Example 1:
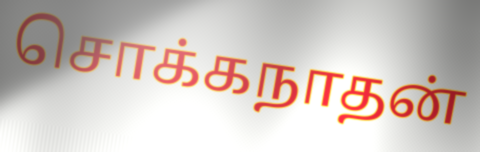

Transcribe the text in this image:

சொக்கநாதன்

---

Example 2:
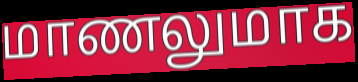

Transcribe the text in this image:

மாணலுமாக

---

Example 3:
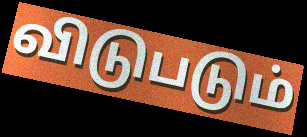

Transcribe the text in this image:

விடுபடும்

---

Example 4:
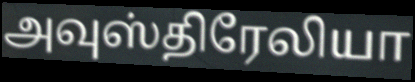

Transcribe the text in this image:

அவுஸ்திரேலியா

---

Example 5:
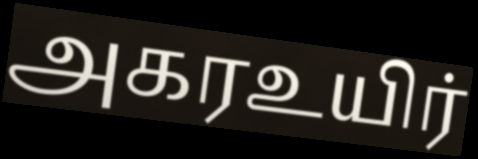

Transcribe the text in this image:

அகரஉயிர்